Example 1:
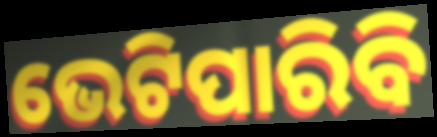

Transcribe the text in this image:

ଭେଟିପାରିବି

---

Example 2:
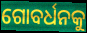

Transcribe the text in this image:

ଗୋବର୍ଧନକୁ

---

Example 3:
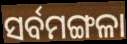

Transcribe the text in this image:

ସର୍ବମଙ୍ଗଳା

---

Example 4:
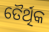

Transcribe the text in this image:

ତୈର୍ଥିକ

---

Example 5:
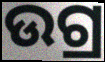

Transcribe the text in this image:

ଉଗ୍ର